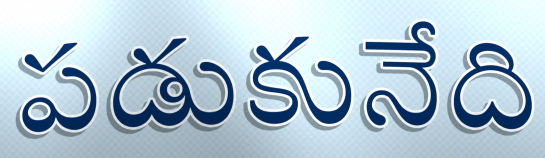
పడుకునేది